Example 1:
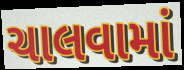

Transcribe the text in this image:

ચાલવામાં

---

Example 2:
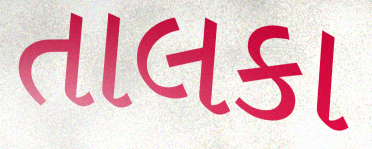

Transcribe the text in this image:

તાલકા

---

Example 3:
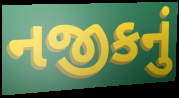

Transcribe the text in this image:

નજીકનું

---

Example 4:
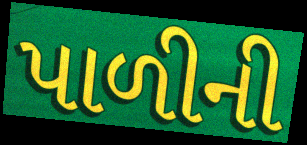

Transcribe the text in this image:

પાળીની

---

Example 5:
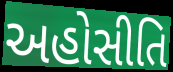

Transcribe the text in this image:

અહોસીતિ